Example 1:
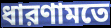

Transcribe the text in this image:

ধারণামতে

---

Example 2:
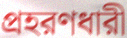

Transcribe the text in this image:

প্রহরণধারী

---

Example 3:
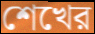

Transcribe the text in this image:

শেখের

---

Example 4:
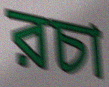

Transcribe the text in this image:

রচা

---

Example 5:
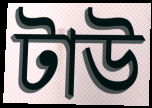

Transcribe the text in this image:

টাউ